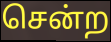
சென்ற